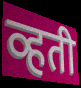
व्हती